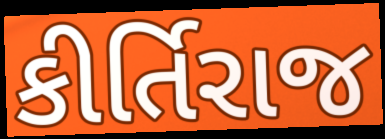
કીર્તિરાજ